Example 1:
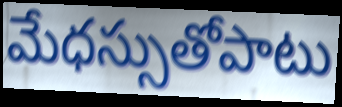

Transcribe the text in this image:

మేధస్సుతోపాటు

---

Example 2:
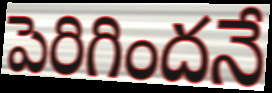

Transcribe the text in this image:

పెరిగిందనే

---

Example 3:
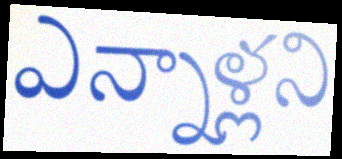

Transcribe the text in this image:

ఎన్నాళ్లని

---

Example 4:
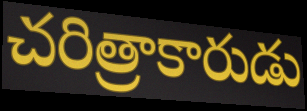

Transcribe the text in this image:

చరిత్రాకారుడు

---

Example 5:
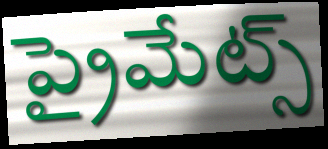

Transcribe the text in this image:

ప్రైమేట్స్